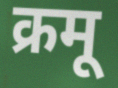
क्रमू